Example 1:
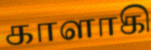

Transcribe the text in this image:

காளாகி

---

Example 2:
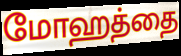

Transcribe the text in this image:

மோஹத்தை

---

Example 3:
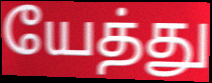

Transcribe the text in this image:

யேத்து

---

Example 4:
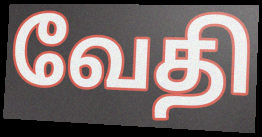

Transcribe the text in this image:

வேதி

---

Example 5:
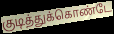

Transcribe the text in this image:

குடித்துக்கொண்டே